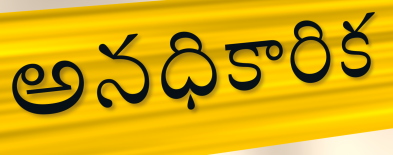
అనధికారిక